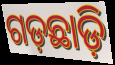
ଗଡ଼ଛାଡ଼ି